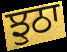
ਝੁਠਾ